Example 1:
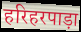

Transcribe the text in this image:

हरिहरपाड़ा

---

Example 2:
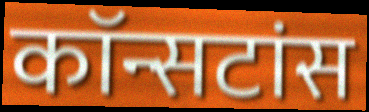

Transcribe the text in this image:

कॉन्सटांस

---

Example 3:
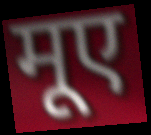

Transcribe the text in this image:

मूए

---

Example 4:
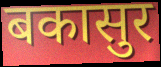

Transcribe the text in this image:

बकासुर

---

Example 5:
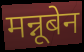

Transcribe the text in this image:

मन्नूबेन